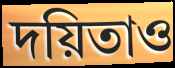
দয়িতাও